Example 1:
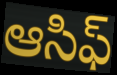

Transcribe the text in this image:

ఆసిఫ్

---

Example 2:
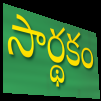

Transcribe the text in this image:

సార్థకం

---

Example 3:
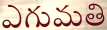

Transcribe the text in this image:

ఎగుమతి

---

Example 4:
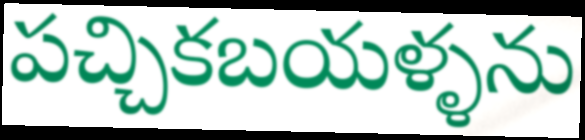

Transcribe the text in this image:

పచ్చికబయళ్ళను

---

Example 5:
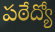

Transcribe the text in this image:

పఠేద్యో